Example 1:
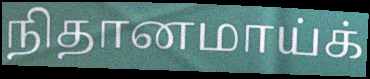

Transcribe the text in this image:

நிதானமாய்க்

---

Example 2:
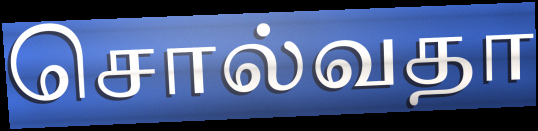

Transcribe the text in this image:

சொல்வதா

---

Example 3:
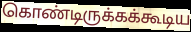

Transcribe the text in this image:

கொண்டிருக்கக்கூடிய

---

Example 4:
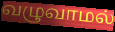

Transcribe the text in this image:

வழுவாமல்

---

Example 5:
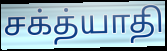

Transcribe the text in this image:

சக்த்யாதி